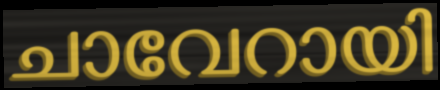
ചാവേറായി